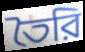
তৈরি